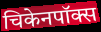
चिकेनपॉक्स